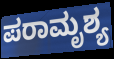
ಪರಾಮೃಶ್ಯ